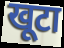
खूटा